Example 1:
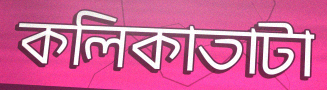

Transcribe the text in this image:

কলিকাতাটা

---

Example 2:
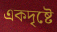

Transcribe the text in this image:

একদৃষ্টে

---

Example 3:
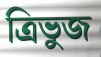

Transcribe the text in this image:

ত্রিভুজ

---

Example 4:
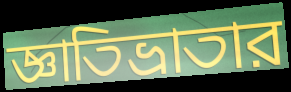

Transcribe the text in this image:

জ্ঞাতিভ্রাতার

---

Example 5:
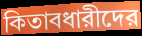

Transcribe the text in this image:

কিতাবধারীদের